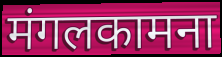
मंगलकामना